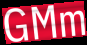
GMm